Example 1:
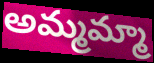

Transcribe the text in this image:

అమ్మమ్మా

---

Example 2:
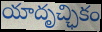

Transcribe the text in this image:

యాదృచ్ఛికం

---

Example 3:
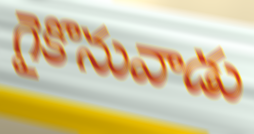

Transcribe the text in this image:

గైకొనువాడు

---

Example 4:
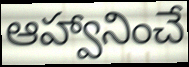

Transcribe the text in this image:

ఆహ్వానించే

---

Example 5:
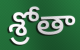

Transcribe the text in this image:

శ్రోతా